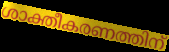
ശാക്തീകരണത്തിന്